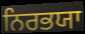
ਨਿਰਭਯਾ